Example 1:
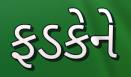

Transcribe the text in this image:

ફડકેને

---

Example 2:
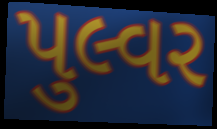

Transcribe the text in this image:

પુલ્વર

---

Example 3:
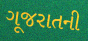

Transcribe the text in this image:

ગૂજરાતની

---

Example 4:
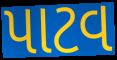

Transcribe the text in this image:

પાટવ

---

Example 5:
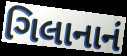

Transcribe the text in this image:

ગિલાનાનં